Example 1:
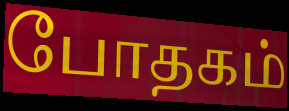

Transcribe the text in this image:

போதகம்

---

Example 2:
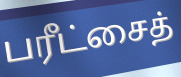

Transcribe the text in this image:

பரீட்சைத்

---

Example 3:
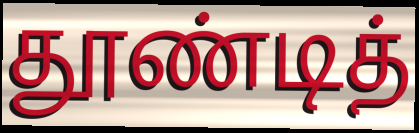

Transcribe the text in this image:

தூண்டித்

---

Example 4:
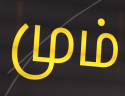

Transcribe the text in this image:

மும்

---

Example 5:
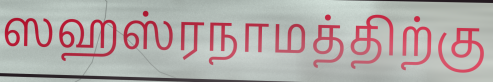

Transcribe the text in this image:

ஸஹஸ்ரநாமத்திற்கு